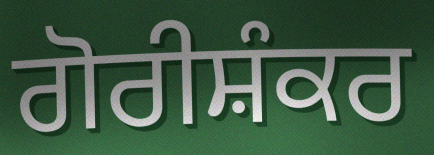
ਗੋਰੀਸ਼ੰਕਰ